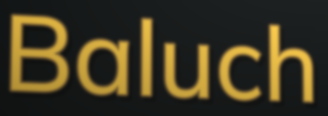
Baluch